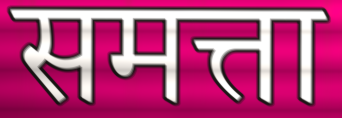
समत्ता